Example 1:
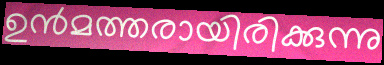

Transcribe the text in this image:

ഉൻമത്തരായിരിക്കുന്നു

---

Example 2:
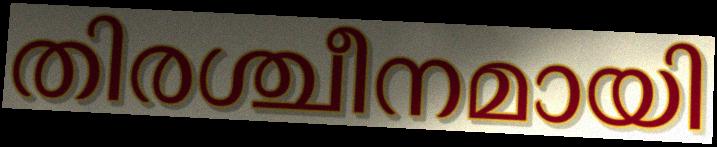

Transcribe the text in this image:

തിരശ്ചീനമായി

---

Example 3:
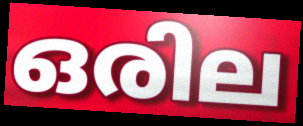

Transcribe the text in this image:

ഒരില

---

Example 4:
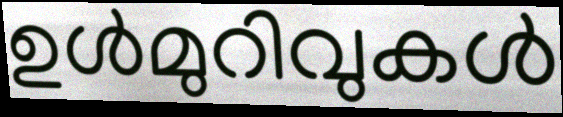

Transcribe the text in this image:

ഉൾമുറിവുകൾ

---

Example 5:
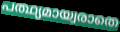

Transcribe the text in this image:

പത്ഥ്യമായ്വരാതെ